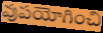
వుపయోగించి